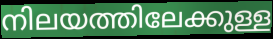
നിലയത്തിലേക്കുള്ള